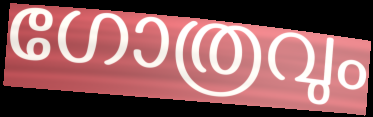
ഗോത്രവും